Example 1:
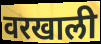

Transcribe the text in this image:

वरखाली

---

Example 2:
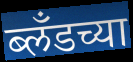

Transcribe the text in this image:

ब्लँडच्या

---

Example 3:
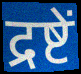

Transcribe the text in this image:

द्रष्टें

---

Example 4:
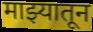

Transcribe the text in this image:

माझ्यातून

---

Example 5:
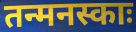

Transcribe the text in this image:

तन्मनस्काः